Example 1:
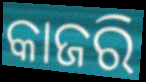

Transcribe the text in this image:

କାଜରି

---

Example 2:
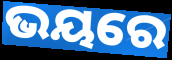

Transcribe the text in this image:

ଭୟରେ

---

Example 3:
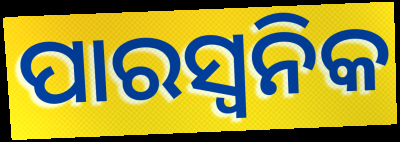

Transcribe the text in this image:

ପାରସ୍ୱନିକ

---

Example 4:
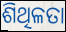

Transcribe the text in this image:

ଶିଥିଳତା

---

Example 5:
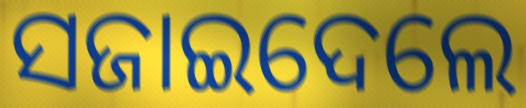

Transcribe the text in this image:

ସଜାଇଦେଲେ